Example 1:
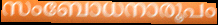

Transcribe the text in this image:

സംബോധനാരൂപം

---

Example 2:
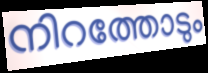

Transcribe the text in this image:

നിറത്തോടും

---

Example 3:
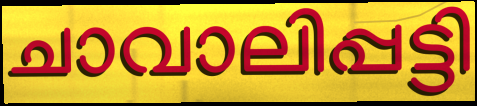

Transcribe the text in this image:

ചാവാലിപ്പട്ടി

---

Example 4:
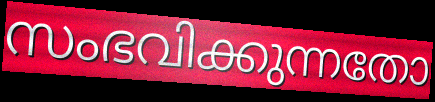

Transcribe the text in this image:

സംഭവിക്കുന്നതോ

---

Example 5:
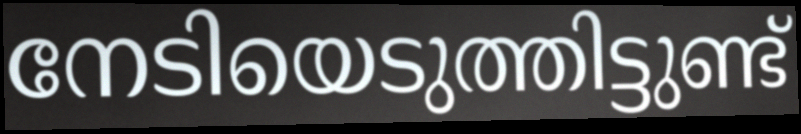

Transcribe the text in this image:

നേടിയെടുത്തിട്ടുണ്ട്